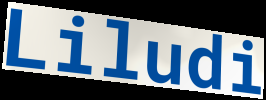
Liludi